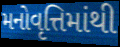
મનોવૃત્તિમાંથી